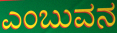
ಎಂಬುವನ